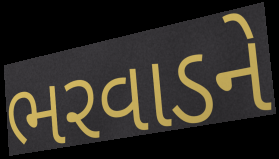
ભરવાડને